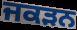
ਜਕੜਨ